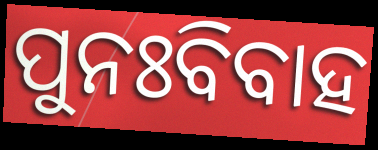
ପୁନଃବିବାହ